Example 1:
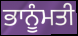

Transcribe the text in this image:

ਭਾਨੂੰਮਤੀ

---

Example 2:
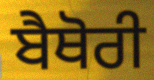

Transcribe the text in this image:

ਬੈਥੋਰੀ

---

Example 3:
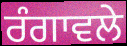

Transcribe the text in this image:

ਰੰਗਾਵਲੇ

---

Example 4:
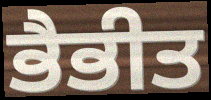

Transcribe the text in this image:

ਭੈਭੀਤ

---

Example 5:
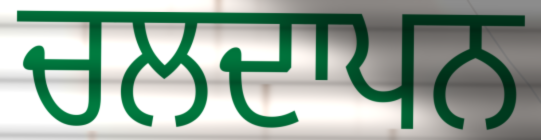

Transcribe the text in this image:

ਚਲਦਾਪਨ